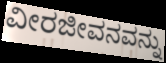
ವೀರಜೀವನವನ್ನು